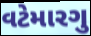
વટેમારગુ